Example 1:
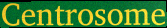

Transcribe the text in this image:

Centrosome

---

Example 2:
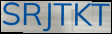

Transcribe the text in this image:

SRJTKT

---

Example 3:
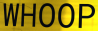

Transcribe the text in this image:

WHOOP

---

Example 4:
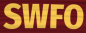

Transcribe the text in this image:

SWFO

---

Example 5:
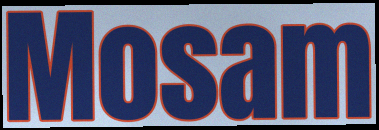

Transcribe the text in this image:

Mosam